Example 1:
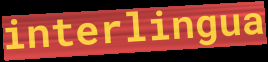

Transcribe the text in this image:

interlingua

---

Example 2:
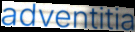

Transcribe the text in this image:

adventitia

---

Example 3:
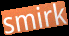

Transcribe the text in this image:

smirk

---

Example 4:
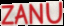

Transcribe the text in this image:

ZANU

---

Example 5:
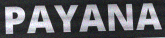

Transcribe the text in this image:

PAYANA